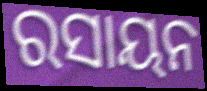
ରସାୟନ